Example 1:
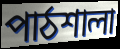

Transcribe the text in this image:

পাঠশালা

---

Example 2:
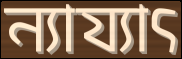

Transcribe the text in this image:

ন্যায্যাৎ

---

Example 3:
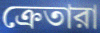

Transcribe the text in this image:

ক্রেতারা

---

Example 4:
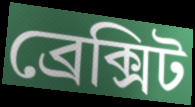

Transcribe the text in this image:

ব্রেক্সিট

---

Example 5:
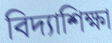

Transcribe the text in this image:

বিদ্যাশিক্ষা